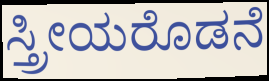
ಸ್ತ್ರೀಯರೊಡನೆ